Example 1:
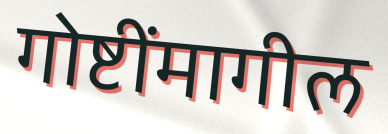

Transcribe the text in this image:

गोष्टींमागील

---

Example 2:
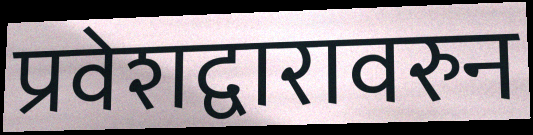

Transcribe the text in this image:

प्रवेशद्वारावरुन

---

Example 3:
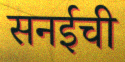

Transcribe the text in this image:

सनईची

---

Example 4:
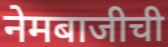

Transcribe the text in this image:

नेमबाजीची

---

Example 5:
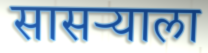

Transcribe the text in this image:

सासऱ्याला